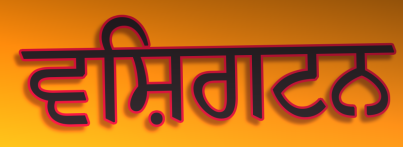
ਵਸ਼ਿਗਟਨ